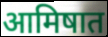
आमिषात